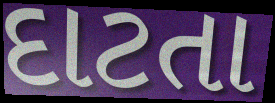
દાટતા